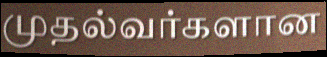
முதல்வர்களான